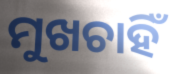
ମୁଖଚାହିଁ